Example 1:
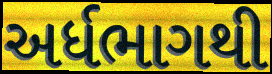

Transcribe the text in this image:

અર્ધભાગથી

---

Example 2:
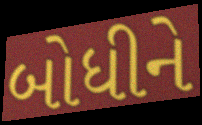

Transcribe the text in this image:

બોધીને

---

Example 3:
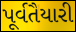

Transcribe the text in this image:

પૂર્વતૈયારી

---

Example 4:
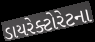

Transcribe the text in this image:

ડાયરેક્ટોરેટના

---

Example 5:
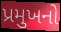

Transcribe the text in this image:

પ્રમુખનો